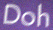
Doh